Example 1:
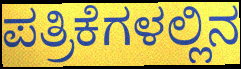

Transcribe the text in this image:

ಪತ್ರಿಕೆಗಳಲ್ಲಿನ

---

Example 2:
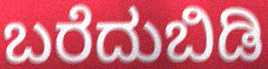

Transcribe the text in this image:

ಬರೆದುಬಿಡಿ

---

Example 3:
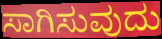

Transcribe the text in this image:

ಸಾಗಿಸುವುದು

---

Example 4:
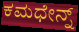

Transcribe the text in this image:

ಕಮಧೇನ್ನ್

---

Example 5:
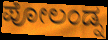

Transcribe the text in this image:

ಪೋಲಂಡ್ನ